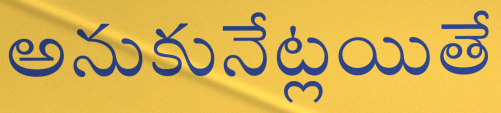
అనుకునేట్లయితే